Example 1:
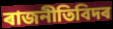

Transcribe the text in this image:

ৰাজনীতিবিদৰ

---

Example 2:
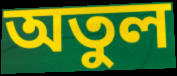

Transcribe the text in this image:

অতুল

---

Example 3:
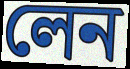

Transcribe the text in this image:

লেন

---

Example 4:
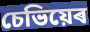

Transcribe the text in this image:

চেভিয়েৰ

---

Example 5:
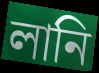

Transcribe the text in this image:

লানি